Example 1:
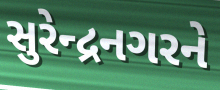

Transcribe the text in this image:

સુરેન્દ્રનગરને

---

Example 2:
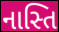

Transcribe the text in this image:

નાસ્તિ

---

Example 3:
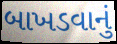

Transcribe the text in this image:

બાખડવાનું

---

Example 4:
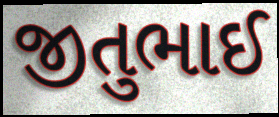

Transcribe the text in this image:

જીતુભાઈ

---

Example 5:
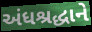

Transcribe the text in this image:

અંધશ્રદ્ધાને